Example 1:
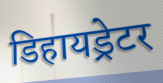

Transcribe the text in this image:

डिहायड्रेटर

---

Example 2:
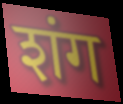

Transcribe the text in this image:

शंग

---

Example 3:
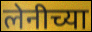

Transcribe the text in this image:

लेनीच्या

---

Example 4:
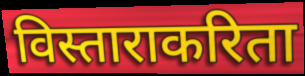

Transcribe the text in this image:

विस्ताराकरिता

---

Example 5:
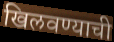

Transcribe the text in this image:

खिलवण्याची